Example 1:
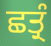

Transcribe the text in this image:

ਛਤ੍ਰੰ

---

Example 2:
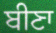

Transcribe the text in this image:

ਬੀਣਾ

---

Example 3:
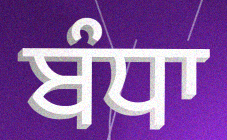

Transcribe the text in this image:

ਬੰਧਾ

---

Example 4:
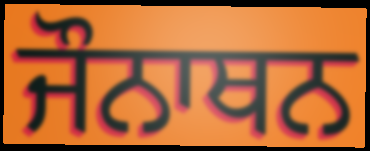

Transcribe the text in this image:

ਜੌਨਾਥਨ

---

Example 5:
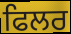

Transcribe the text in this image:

ਫਿਲਰ